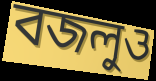
বজলুও